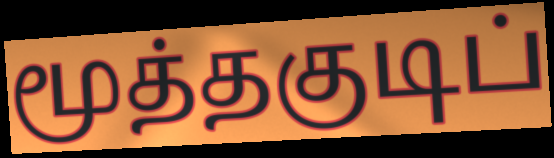
மூத்தகுடிப்